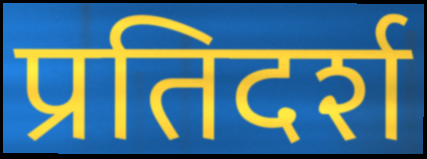
प्रतिदर्श